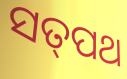
ସତ୍‌ପଥ